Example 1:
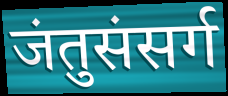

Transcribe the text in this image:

जंतुसंसर्ग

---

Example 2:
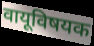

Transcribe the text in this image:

वायूविषयक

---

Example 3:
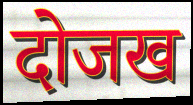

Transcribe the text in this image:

दोजख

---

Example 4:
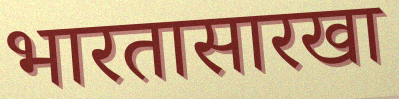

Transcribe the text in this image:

भारतासारखा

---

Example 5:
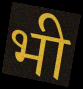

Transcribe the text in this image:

भी